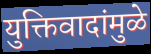
युक्तिवादांमुळे